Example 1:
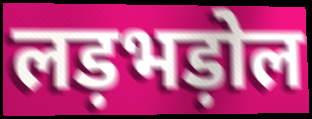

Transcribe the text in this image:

लड़भड़ोल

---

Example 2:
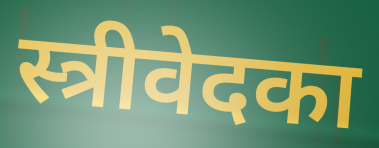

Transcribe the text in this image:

स्त्रीवेदका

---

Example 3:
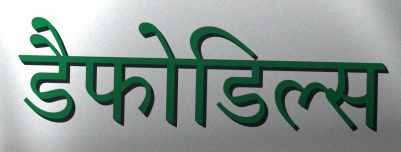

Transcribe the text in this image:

डैफोडिल्स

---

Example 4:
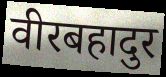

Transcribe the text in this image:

वीरबहादुर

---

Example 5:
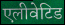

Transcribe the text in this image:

एलीवेटिड